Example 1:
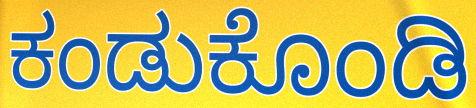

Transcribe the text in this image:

ಕಂಡುಕೊಂಡಿ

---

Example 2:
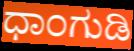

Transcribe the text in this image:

ಧಾಂಗುಡಿ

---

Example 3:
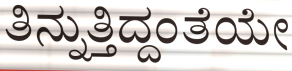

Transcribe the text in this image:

ತಿನ್ನುತ್ತಿದ್ದಂತೆಯೇ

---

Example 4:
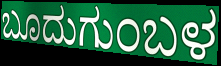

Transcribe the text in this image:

ಬೂದುಗುಂಬಳ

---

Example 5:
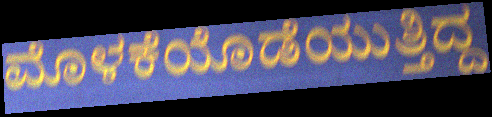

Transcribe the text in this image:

ಮೊಳಕೆಯೊಡೆಯುತ್ತಿದ್ದ